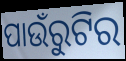
ପାଉଁରୁଟିର